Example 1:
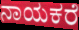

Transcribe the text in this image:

ನಾಯಕರೆ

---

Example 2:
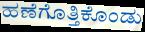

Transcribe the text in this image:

ಹಣೆಗೊತ್ತಿಕೊಂಡು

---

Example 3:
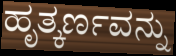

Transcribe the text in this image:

ಹೃತ್ಕರ್ಣವನ್ನು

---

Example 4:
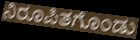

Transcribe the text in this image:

ನಿರೂಪಿತಗೊಂಡು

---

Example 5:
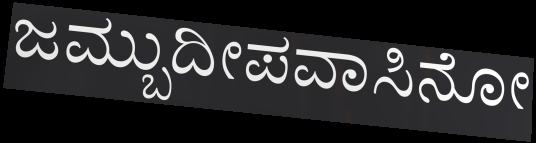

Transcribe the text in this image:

ಜಮ್ಬುದೀಪವಾಸಿನೋ